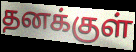
தனக்குள்